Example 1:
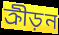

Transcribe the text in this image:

ক্রীড়ন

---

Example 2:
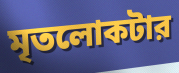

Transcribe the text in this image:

মৃতলোকটার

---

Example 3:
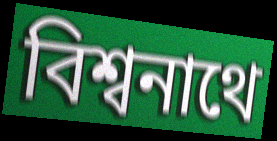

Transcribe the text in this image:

বিশ্বনাথে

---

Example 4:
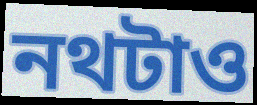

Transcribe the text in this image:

নথটাও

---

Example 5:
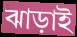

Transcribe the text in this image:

ঝাড়াই